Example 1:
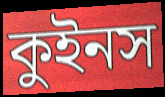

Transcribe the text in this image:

কুইনস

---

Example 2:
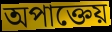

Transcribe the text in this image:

অপাক্তেয়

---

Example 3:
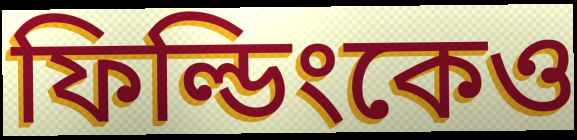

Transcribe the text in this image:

ফিল্ডিংকেও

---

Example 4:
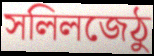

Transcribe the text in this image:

সলিলজেঠু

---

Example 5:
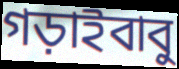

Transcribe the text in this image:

গড়াইবাবু